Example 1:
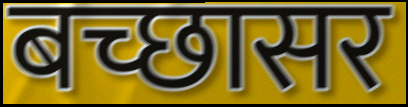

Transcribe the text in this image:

बच्छासर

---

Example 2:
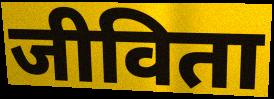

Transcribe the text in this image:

जीविता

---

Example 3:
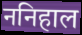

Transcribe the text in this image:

ननिहाल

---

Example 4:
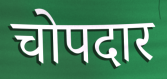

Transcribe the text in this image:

चोपदार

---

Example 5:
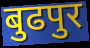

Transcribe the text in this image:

बुढपुर